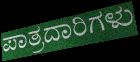
ಪಾತ್ರದಾರಿಗಳು